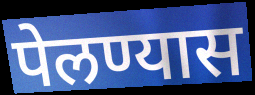
पेलण्यास